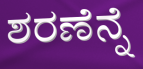
ಶರಣೆನ್ನೆ